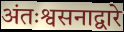
अंतःश्वसनाद्वारे